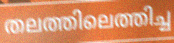
തലത്തിലെത്തിച്ച